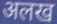
अलख